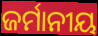
ଜର୍ମାନୀୟ